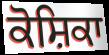
ਕੋਸ਼ਿਕਾ